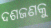
ଦଶଜଣକୁ